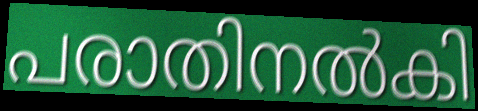
പരാതിനൽകി